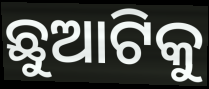
ଛୁଆଟିକୁ